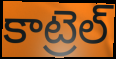
కాట్రెల్